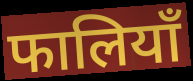
फालियाँ